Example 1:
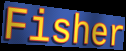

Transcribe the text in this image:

Fisher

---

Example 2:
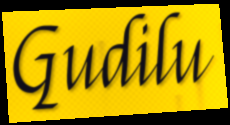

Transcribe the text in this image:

Gudilu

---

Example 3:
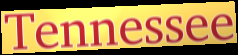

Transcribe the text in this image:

Tennessee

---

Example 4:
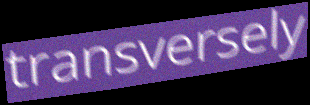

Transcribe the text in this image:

transversely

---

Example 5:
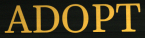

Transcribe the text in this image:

ADOPT